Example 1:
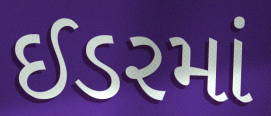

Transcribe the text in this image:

ઈડરમાં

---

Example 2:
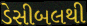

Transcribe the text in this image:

ડેસીબલથી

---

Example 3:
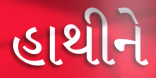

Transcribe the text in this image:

હાથીને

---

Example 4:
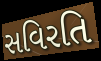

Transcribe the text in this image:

સવિરતિ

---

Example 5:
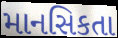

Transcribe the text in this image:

માનસિકતા